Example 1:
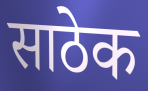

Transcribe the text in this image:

साठेक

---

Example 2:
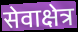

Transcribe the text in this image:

सेवाक्षेत्र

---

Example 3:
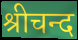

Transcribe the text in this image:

श्रीचन्द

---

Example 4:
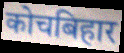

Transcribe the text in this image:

कोचबिहार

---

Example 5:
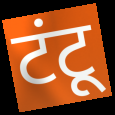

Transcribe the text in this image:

टंटू